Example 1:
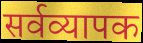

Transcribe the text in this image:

सर्वव्यापक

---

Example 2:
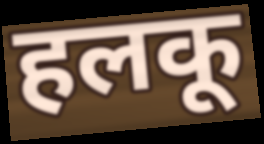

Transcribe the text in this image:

हलकू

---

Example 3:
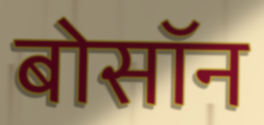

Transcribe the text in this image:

बोसॉन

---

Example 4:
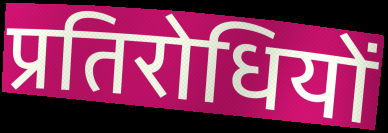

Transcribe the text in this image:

प्रतिरोधियों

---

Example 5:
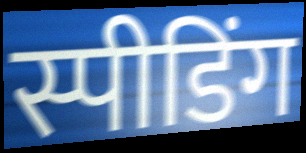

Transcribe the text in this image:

स्‍पीडिंग